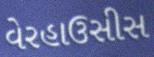
વેરહાઉસીસ